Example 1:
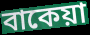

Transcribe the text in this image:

বাকেয়া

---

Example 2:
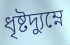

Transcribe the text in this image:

ধৃষ্টদ্যুম্নে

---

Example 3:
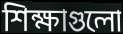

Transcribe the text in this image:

শিক্ষাগুলো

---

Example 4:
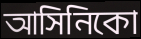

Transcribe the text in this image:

আসিনিকো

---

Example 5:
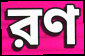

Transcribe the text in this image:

রণ